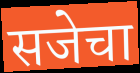
सजेचा